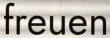
freuen